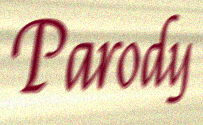
Parody